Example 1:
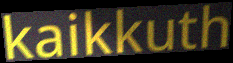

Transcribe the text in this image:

kaikkuth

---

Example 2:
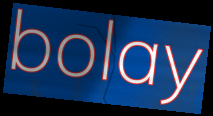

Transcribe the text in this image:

bolay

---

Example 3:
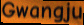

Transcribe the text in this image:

Gwangju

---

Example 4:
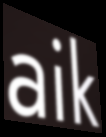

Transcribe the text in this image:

aik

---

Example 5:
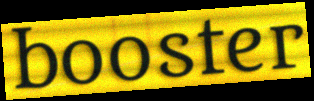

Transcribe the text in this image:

booster